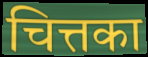
चित्तका